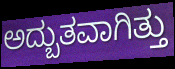
ಅದ್ಬುತವಾಗಿತ್ತು